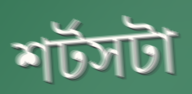
শর্টসটা